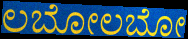
ಲಬೋಲಬೋ